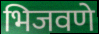
भिजवणे